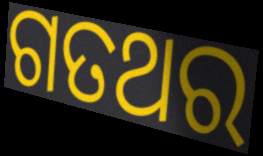
ଗତଥର